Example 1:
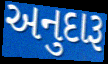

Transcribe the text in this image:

અનુદારૂ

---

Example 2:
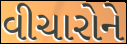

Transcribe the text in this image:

વીચારોને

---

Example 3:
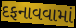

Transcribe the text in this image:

દફનાવવામાં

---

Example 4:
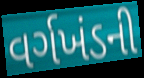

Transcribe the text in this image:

વર્ગખંડની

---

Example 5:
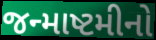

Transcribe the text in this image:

જન્માષ્ટમીનો